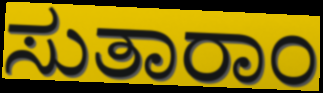
ಸುತಾರಾಂ